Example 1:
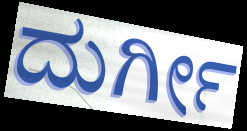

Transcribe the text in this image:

ದುರ್ಗೀ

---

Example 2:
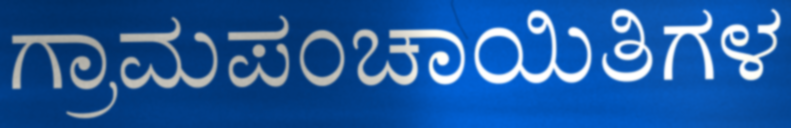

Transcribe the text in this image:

ಗ್ರಾಮಪಂಚಾಯಿತಿಗಳ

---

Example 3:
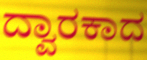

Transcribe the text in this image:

ದ್ವಾರಕಾದ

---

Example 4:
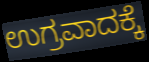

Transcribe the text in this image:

ಉಗ್ರವಾದಕ್ಕೆ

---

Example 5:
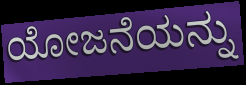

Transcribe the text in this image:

ಯೋಜನೆಯನ್ನು